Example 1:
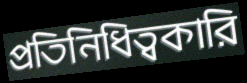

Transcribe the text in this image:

প্রতিনিধিত্বকারি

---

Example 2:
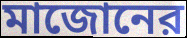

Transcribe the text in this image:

মাজোনের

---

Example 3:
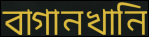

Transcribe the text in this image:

বাগানখানি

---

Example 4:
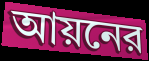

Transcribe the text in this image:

আয়নের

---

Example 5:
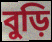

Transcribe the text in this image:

বুড়ি